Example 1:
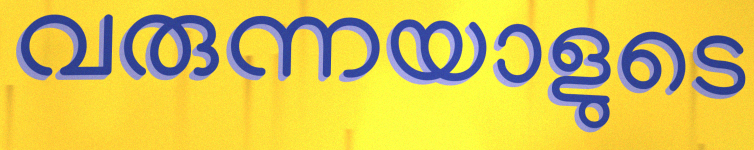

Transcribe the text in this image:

വരുന്നയാളുടെ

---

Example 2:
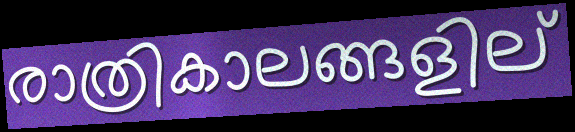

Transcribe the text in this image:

രാത്രികാലങ്ങളില്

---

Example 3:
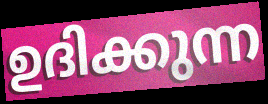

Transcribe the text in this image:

ഉദിക്കുന്ന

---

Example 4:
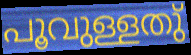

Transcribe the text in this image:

പൂവുള്ളതു്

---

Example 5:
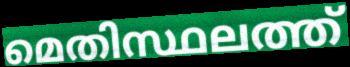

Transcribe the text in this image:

മെതിസ്ഥലത്ത്